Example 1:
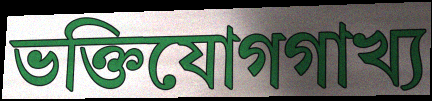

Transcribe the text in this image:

ভক্তিযোগগাখ্য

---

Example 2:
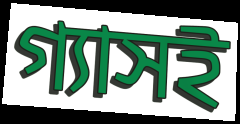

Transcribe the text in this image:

গ্যাসই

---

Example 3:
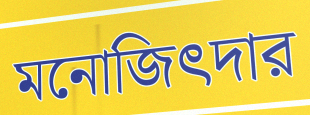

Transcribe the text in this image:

মনোজিৎদার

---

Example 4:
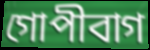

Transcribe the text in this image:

গোপীবাগ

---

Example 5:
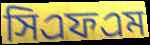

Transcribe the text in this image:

সিএফএম